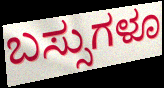
ಬಸ್ಸುಗಳೂ